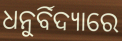
ଧନୁର୍ବିଦ୍ୟାରେ